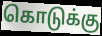
கொடுக்கு